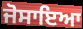
ਜੋਸਾਇਆ